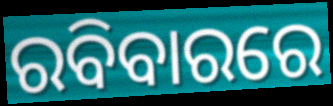
ରବିବାରରେ